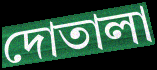
দোতালা